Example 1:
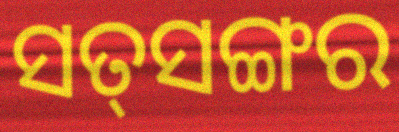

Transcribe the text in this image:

ସତ୍‌ସଙ୍ଗର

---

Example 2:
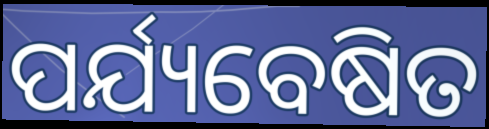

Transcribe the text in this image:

ପର୍ଯ୍ୟବେଷିତ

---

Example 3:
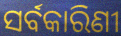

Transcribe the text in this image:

ସର୍ବକାରିଣୀ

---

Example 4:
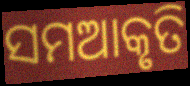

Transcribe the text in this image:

ସମଆକୃତି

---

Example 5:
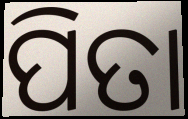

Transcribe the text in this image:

ପିତା